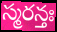
స్మరన్తః